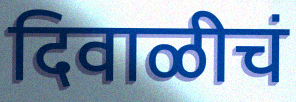
दिवाळीचं